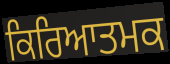
ਕਿਰਿਆਤਮਕ